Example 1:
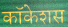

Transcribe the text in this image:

कॉकेशस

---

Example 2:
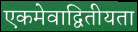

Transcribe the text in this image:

एकमेवाद्वितीयता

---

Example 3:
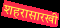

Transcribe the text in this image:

शहरासारखी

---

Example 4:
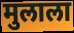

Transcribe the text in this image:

मुलाला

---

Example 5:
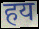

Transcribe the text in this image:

हय